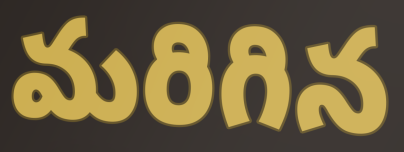
మరిగిన